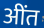
अींत